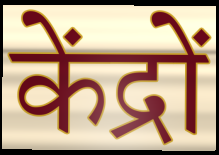
केंद्रों